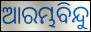
ଆରମ୍ଭବିନ୍ଦୁ